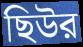
ছিউর